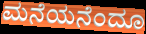
ಮನೆಯನೆಂದೂ